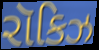
રૉકિઝ